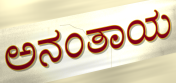
ಅನಂತಾಯ